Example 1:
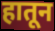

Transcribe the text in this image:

हातून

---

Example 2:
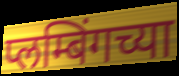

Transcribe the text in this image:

प्लम्बिंगच्या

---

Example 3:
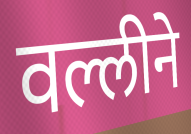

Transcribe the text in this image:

वल्लीने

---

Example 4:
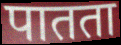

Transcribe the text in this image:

पातता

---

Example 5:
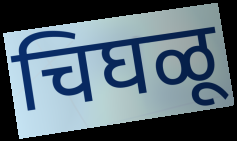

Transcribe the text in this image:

चिघळू